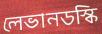
লেভানডস্কি